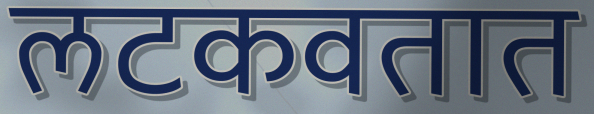
लटकवतात